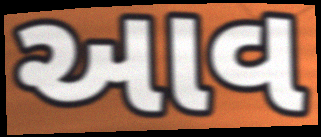
આવ